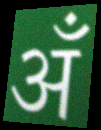
अँ